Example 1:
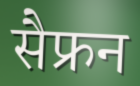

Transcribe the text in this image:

सैफ्रन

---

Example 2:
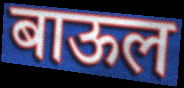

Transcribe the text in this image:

बाऊल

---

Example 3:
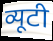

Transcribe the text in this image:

व्यूटी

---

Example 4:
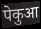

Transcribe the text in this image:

पेकुआ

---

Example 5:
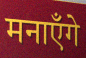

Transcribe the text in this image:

मनाएँगे